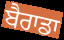
ਬੈਰਾਡਾ